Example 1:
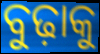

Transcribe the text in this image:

ବୁଢ଼ାକୁ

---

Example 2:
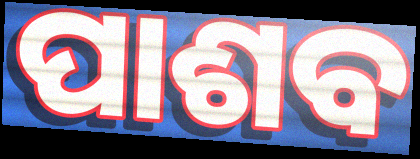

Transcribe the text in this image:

ପାଶବ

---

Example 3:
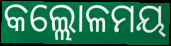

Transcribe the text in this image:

କଲ୍ଲୋଳମୟ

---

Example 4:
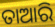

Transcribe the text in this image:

ତାଆରି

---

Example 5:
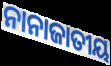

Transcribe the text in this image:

ନାନାଜାତୀୟ